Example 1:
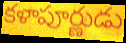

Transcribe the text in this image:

కళాపూర్ణుడు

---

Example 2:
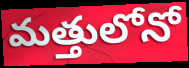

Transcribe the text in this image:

మత్తులోనో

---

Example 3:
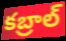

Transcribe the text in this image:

కబ్రాల్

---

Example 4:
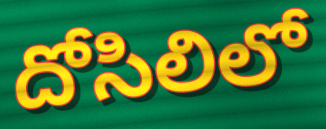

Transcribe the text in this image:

దోసిలిలో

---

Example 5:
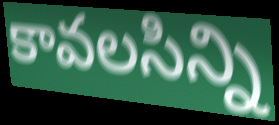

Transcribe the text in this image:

కావలసిన్ని